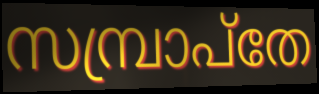
സമ്പ്രാപ്തേ